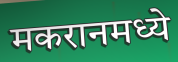
मकरानमध्ये